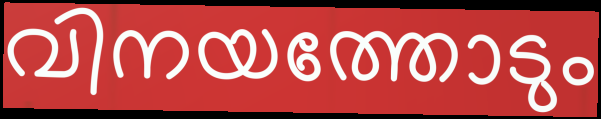
വിനയത്തോടും